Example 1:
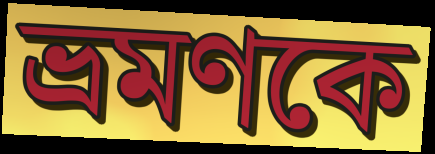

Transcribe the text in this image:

ভ্রমণকে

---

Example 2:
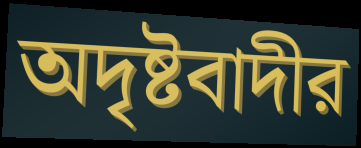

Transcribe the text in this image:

অদৃষ্টবাদীর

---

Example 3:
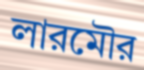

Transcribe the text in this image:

লারমৌর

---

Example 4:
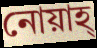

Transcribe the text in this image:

নোয়াহ্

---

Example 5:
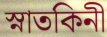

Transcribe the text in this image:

স্নাতকিনী